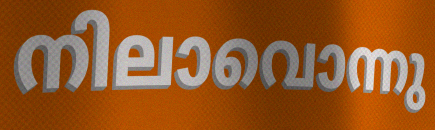
നിലാവൊന്നു